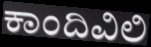
ಕಾಂದಿವಿಲಿ